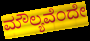
ಮೌಲ್ಯವೆಂದೇ